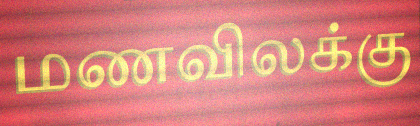
மணவிலக்கு